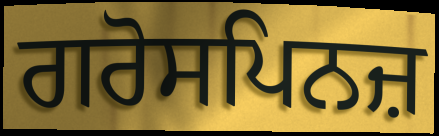
ਗਰੋਸਪਿਨਜ਼